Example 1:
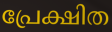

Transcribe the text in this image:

പ്രേക്ഷിത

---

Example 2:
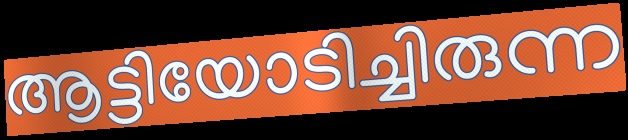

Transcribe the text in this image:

ആട്ടിയോടിച്ചിരുന്ന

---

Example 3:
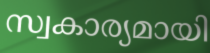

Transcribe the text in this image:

സ്വകാര്യമായി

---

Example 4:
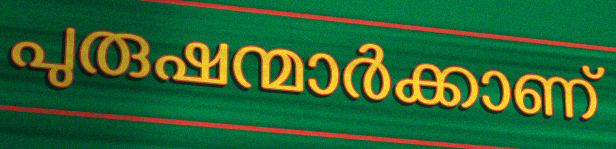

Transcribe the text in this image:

പുരുഷന്മാർക്കാണ്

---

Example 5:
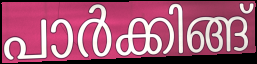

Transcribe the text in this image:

പാർക്കിങ്ങ്